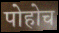
पोहोच